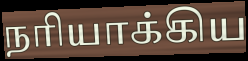
நரியாக்கிய